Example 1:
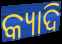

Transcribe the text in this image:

କ୍ୟାଦି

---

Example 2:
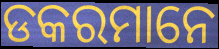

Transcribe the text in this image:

ଡକରମାନେ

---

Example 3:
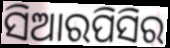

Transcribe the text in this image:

ସିଆରପିସିର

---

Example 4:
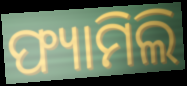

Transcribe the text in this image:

ଫ୍ୟାମିଲି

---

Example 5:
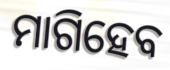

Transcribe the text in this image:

ମାଗିହେବ